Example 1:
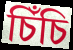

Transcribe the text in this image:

চিঁচি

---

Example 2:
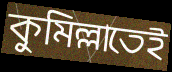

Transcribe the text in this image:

কুমিল্লাতেই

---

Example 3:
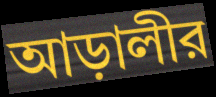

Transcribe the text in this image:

আড়ালীর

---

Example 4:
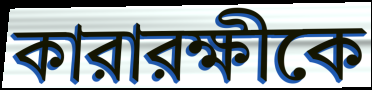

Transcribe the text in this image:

কারারক্ষীকে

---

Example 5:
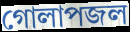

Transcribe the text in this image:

গোলাপজল